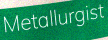
Metallurgist